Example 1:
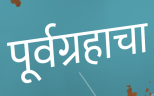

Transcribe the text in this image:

पूर्वग्रहाचा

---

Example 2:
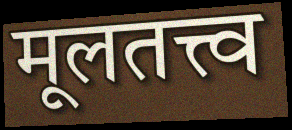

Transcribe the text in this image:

मूलतत्त्व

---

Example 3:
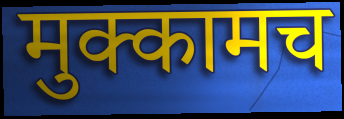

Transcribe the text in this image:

मुक्कामच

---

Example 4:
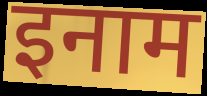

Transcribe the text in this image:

इनाम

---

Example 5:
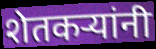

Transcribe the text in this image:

शेतकर्‍यांनी